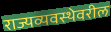
राज्यव्यवस्थेवरील